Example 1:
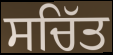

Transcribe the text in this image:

ਸਚਿੱਤ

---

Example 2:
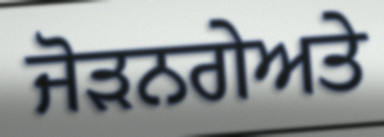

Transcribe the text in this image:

ਜੋੜਨਗੇਅਤੇ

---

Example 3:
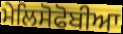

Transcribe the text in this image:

ਮੇਲਿਸੋਫੋਬੀਆ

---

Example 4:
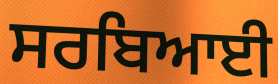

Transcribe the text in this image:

ਸਰਬਿਆਈ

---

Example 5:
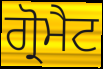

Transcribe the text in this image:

ਗ੍ਰੋਮੈਟ